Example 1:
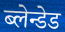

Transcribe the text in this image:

ब्लेन्डेड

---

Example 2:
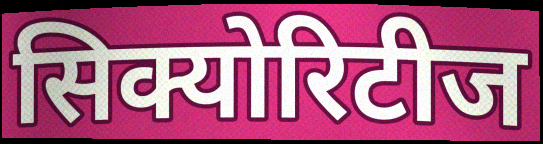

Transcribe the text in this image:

सिक्योरिटीज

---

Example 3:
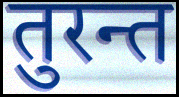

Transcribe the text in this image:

तुरन्त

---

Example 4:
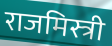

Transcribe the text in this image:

राजमिस्त्री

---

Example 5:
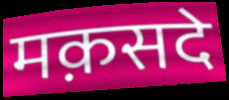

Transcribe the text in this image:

मक़सदे